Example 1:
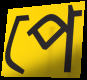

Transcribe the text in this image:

পে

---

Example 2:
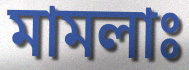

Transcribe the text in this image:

মামলাঃ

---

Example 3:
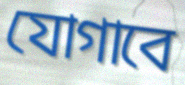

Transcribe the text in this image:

যোগাবে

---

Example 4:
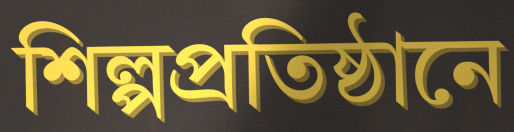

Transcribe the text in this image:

শিল্পপ্রতিষ্ঠানে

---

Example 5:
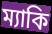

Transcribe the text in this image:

ম্যাকি